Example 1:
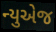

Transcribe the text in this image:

ન્યુએજ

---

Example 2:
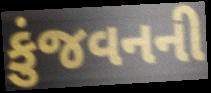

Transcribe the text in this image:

કુંજવનની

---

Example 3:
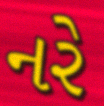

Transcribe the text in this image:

નરે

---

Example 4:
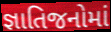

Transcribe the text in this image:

જ્ઞાતિજનોમાં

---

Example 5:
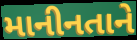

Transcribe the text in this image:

માનીનતાને